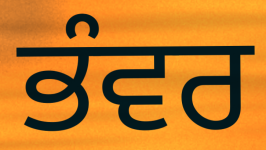
ਭੰਵਰ